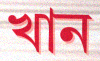
খান